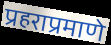
प्रहराप्रमाणे